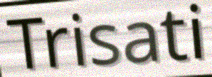
Trisati